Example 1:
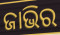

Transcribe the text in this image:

ଜାଭିର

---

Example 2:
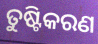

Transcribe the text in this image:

ତୁଷ୍ଟିକରଣ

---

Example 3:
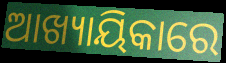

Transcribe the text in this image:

ଆଖ୍ୟାୟିକାରେ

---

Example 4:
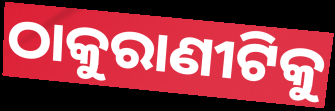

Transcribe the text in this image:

ଠାକୁରାଣୀଟିକୁ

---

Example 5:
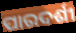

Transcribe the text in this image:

ପାରଦର୍ଶୀ